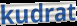
kudrat